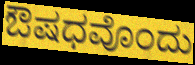
ಔಷಧವೊಂದು